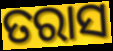
ତରାସ